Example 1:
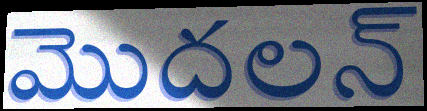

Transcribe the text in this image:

మొదలన్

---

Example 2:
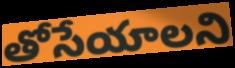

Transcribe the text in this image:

తోసేయాలని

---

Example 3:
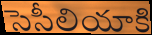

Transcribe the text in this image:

సెసీలియాకి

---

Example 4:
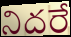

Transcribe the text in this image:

నిదరే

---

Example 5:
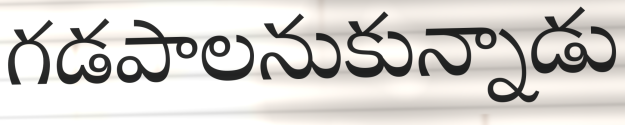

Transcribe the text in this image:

గడపాలనుకున్నాడు